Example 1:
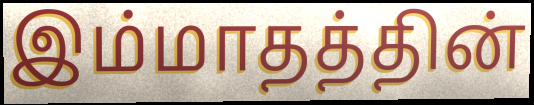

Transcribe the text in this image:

இம்மாதத்தின்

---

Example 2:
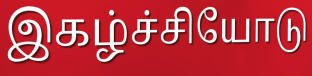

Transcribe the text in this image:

இகழ்ச்சியோடு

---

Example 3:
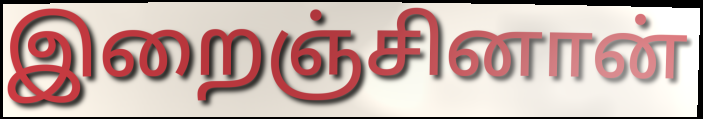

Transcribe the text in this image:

இறைஞ்சினான்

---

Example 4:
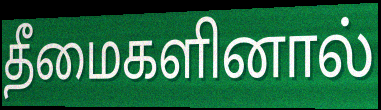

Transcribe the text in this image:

தீமைகளினால்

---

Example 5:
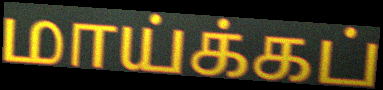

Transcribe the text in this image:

மாய்க்கப்